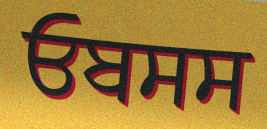
ਓਬਸਸ